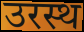
उरस्थ